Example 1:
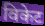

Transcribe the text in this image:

विकेट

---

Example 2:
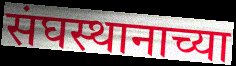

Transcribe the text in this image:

संघस्थानाच्या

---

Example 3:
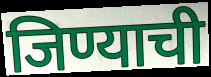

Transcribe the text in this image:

जिण्याची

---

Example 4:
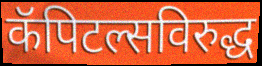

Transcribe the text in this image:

कॅपिटल्सविरुद्ध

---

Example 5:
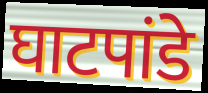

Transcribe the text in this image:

घाटपांडे